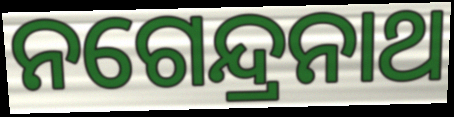
ନଗେନ୍ଦ୍ରନାଥ